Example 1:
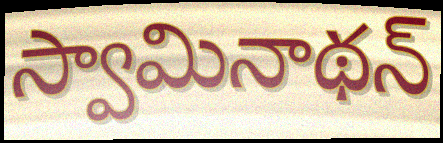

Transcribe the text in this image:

స్వామినాథన్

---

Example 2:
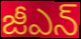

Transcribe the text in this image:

జీఎన్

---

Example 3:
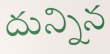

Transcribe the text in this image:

దున్నిన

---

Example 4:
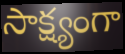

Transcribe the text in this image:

సాక్ష్యంగా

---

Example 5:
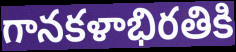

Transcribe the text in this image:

గానకళాభిరతికి